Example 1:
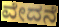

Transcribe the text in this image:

ವೇದನೆ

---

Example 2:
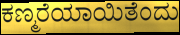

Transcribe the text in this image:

ಕಣ್ಮರೆಯಾಯಿತೆಂದು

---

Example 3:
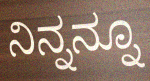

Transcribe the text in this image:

ನಿನ್ನನ್ನೂ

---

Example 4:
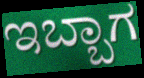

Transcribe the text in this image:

ಇಬ್ಬಾಗ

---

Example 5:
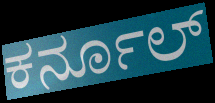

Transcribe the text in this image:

ಕರ್ನೂಲ್